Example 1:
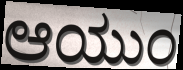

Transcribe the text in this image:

ಆಯುಂ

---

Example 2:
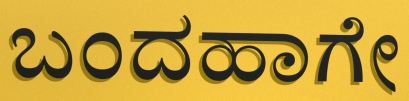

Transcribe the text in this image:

ಬಂದಹಾಗೇ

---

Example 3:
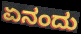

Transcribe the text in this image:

ಏನಂದು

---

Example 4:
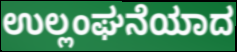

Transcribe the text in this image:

ಉಲ್ಲಂಘನೆಯಾದ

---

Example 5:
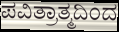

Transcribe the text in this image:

ಪವಿತ್ರಾತ್ಮದಿಂದ